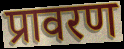
प्रावरण